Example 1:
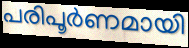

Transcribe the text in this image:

പരിപൂർണമായി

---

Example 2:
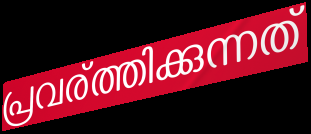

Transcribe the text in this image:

പ്രവര്ത്തിക്കുന്നത്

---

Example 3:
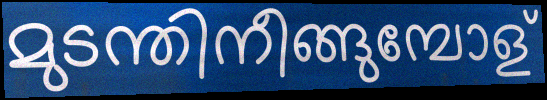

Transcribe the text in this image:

മുടന്തിനീങ്ങുമ്പോള്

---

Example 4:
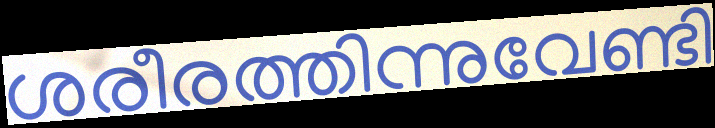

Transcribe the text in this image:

ശരീരത്തിന്നുവേണ്ടി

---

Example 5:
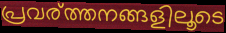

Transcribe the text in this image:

പ്രവര്ത്തനങ്ങളിലൂടെ